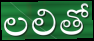
లలితో